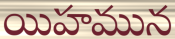
యిహమున